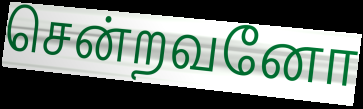
சென்றவனோ